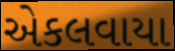
એકલવાયા